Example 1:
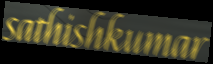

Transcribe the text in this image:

sathishkumar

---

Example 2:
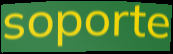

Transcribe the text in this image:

soporte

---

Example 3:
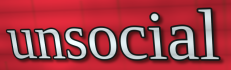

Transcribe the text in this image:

unsocial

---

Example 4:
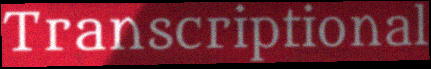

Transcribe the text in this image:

Transcriptional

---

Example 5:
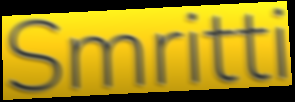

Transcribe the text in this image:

Smritti